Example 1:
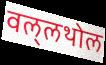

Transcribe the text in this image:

वल्लथोल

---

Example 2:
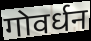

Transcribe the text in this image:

गोवर्धन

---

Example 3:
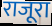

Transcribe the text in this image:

राजूरा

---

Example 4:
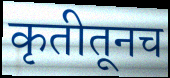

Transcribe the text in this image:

कृतीतूनच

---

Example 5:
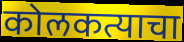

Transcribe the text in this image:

कोलकत्याचा